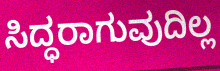
ಸಿದ್ಧರಾಗುವುದಿಲ್ಲ